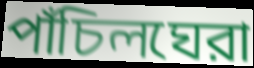
পাঁচিলঘেরা